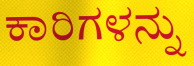
ಕಾರಿಗಳನ್ನು